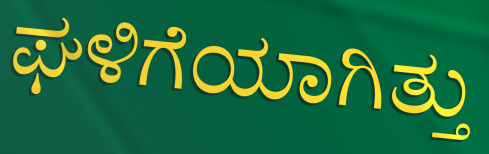
ಘಳಿಗೆಯಾಗಿತ್ತು